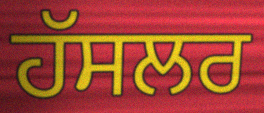
ਹੱਸਲਰ